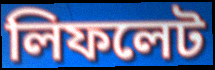
লিফলেট